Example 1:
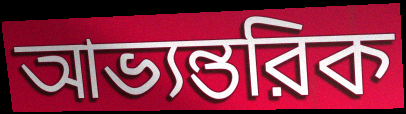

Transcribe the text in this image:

আভ্যন্তরিক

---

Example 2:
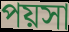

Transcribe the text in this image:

পয়সা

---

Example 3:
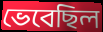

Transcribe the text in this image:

ভেবেছিল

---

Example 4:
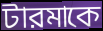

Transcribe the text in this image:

টারমাকে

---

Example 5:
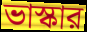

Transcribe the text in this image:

ভাস্কার